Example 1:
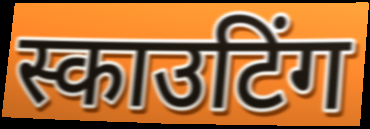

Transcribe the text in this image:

स्काउटिंग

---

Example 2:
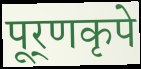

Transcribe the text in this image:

पूर्णकृपे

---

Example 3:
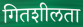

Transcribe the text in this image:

गितशीलता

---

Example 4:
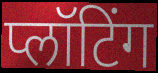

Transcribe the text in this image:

प्लॉटिंग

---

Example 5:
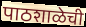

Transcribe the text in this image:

पाठशाळेची